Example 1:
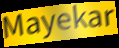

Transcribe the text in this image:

Mayekar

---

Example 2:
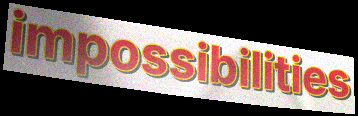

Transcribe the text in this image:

impossibilities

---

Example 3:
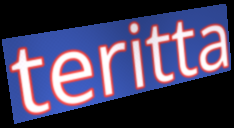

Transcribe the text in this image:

teritta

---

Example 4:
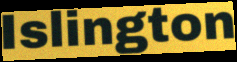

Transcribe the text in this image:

Islington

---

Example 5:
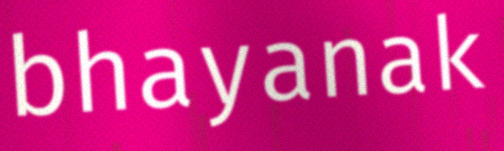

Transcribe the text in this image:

bhayanak